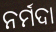
ନର୍ମଦା